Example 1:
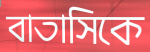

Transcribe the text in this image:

বাতাসিকে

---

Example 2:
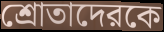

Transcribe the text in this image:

শ্রোতাদেরকে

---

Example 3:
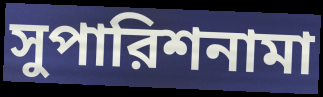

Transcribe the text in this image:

সুপারিশনামা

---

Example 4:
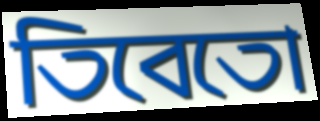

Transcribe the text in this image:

তিবেতো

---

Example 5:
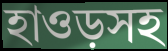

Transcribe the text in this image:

হাওড়সহ